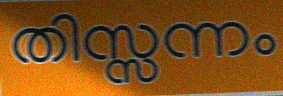
തിസ്സന്നം